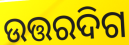
ଉତ୍ତରଦିଗ